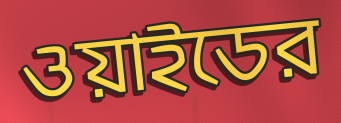
ওয়াইডের